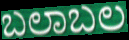
ಬಲಾಬಲ